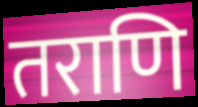
तराणि